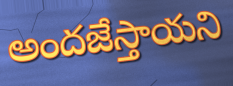
అందజేస్తాయని